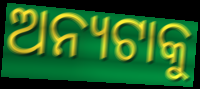
ଅନ୍ୟଟାକୁ